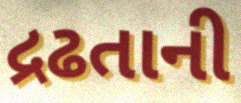
દ્રઢતાની